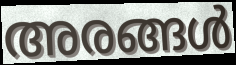
അരങ്ങൾ